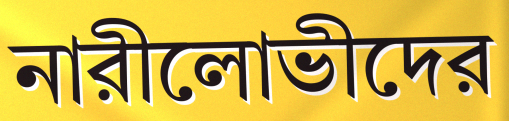
নারীলোভীদের